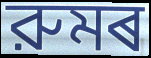
ৰুমৰ